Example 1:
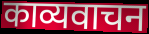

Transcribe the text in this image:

काव्यवाचन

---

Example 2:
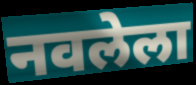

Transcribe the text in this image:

नवलेला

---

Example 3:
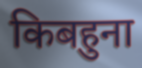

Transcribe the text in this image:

किबहुना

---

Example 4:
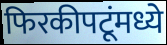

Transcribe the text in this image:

फिरकीपटूंमध्ये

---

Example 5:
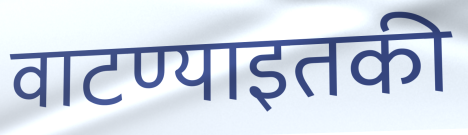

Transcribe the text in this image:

वाटण्याइतकी